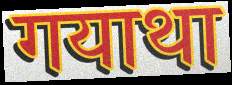
गयाथा